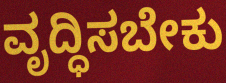
ವೃದ್ಧಿಸಬೇಕು